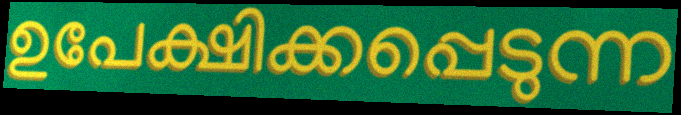
ഉപേക്ഷിക്കപ്പെടുന്ന